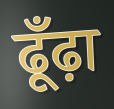
ढूँढ़ा